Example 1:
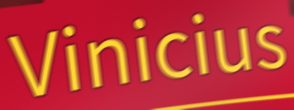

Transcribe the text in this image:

Vinicius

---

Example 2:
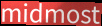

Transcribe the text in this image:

midmost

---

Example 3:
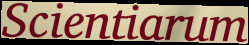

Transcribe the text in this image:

Scientiarum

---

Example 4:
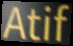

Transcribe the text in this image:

Atif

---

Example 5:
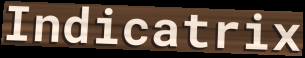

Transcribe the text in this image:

Indicatrix